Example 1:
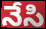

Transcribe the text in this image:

నేసి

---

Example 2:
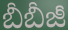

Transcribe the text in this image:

బీబీజీ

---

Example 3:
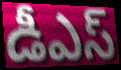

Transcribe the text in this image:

డీఎస్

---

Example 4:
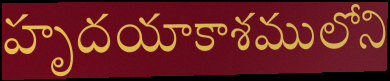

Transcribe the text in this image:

హృదయాకాశములోని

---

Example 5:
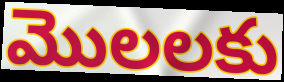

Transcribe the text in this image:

మొలలకు